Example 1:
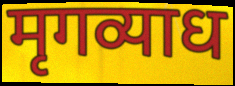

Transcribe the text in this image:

मृगव्याध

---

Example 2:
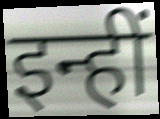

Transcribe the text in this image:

इन्हीं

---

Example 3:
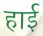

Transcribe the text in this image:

हाई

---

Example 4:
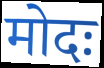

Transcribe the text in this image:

मोदः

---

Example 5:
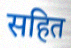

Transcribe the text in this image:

सहित